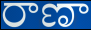
రాణా